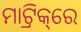
ମାଟ୍ରିକ୍‌ରେ